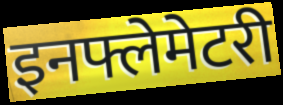
इनफ्लेमेटरी